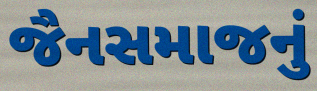
જૈનસમાજનું